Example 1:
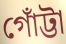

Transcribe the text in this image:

গোঁট্টা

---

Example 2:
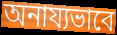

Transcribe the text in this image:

অনায্যভাবে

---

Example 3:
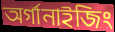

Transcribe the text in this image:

অর্গানাইজিং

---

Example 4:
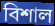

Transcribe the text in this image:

বিশাল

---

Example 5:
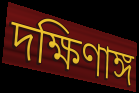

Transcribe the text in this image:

দক্ষিণাঙ্গ